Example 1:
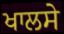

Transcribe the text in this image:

ਖਾਲਸੇ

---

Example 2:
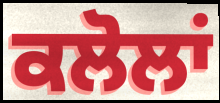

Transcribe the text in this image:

ਕਲੋਲਾਂ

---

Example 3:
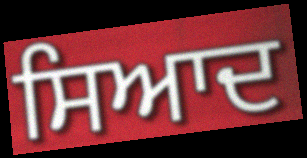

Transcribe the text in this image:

ਸਿਆਦ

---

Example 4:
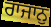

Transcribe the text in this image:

ਰਾਜਾਨੁ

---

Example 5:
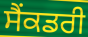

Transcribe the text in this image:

ਸੈਂਕਡਰੀ